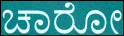
ಚಾರೋ